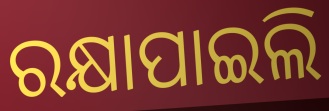
ରକ୍ଷାପାଇଲି